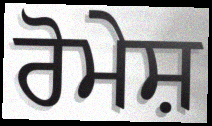
ਰੋਮੇਸ਼